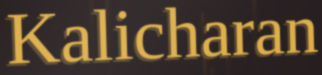
Kalicharan